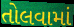
તોલવામાં